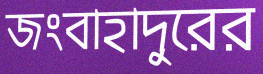
জংবাহাদুরের